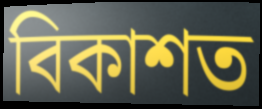
বিকাশত